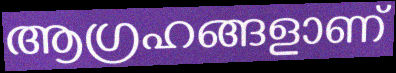
ആഗ്രഹങ്ങളാണ്